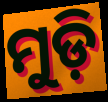
ମୁଡ଼ି